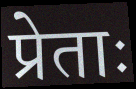
प्रेताः